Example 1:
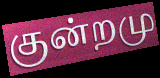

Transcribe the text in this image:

குன்றமு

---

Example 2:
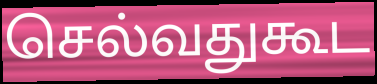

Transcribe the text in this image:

செல்வதுகூட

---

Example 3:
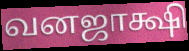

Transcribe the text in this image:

வனஜாக்ஷி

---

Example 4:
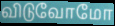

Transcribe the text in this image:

விடுவோமோ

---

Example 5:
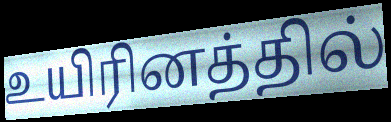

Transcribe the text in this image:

உயிரினத்தில்